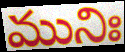
మునిః